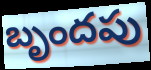
బృందపు